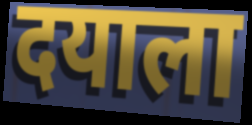
दयाला